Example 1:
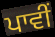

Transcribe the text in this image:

ਪਾਵੀਂ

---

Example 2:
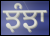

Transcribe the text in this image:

ਝੰਝਾ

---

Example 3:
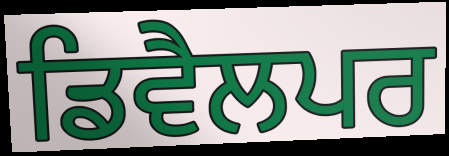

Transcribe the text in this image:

ਡਿਵੈਲਪਰ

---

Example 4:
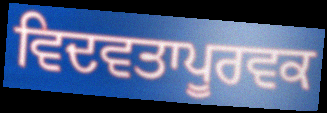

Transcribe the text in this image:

ਵਿਦਵਤਾਪੂਰਵਕ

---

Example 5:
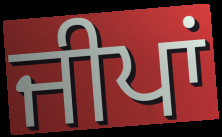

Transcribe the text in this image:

ਜੀਪਾਂ